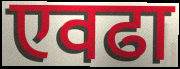
एवढा